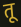
तू